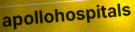
apollohospitals